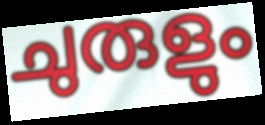
ചുരുളും